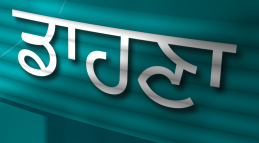
ਡਾਹਣਾ